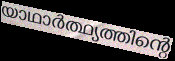
യാഥാർത്ഥ്യത്തിന്റെ